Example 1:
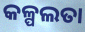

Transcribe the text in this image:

କଳ୍ପଲତା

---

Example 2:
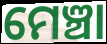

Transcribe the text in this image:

ମେଞ୍ଚା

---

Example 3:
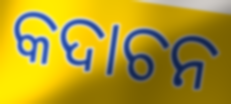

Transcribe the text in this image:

କଦାଚନ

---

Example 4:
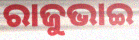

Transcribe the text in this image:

ରାଜୁଭାଇ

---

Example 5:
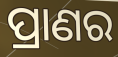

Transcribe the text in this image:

ପ୍ରାଣର